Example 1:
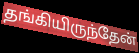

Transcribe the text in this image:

தங்கியிருந்தேன்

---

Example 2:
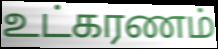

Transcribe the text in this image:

உட்கரணம்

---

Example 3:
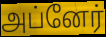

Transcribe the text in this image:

அப்னேர்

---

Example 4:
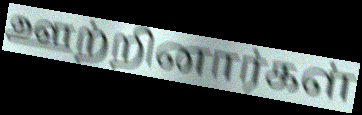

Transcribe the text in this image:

ஊற்றினார்கள்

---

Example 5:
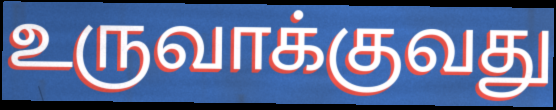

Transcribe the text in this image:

உருவாக்குவது